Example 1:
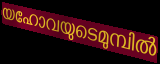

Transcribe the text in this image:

യഹോവയുടെമുമ്പിൽ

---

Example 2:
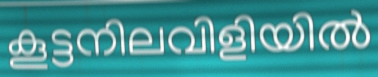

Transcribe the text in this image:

കൂട്ടനിലവിളിയിൽ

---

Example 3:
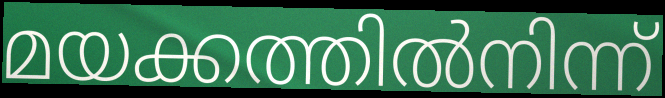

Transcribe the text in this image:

മയക്കത്തിൽനിന്ന്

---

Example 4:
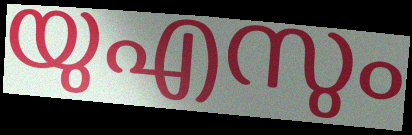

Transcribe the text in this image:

യുഎസും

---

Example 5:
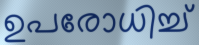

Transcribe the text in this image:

ഉപരോധിച്ച്